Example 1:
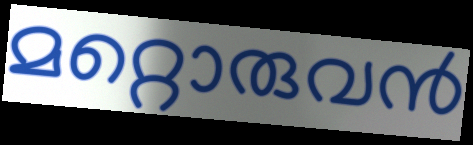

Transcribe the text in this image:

മറ്റൊരുവൻ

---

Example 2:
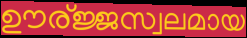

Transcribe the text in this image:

ഊര്ജ്ജസ്വലമായ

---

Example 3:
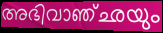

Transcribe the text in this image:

അഭിവാഞ്ഛയും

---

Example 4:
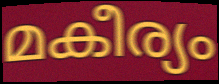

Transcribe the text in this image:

മകീര്യം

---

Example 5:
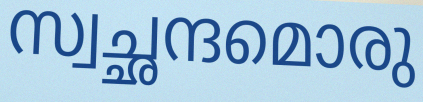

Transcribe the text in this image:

സ്വച്ഛന്ദമൊരു